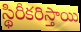
స్థిరీకరిస్తాయి